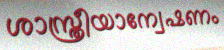
ശാസ്ത്രീയാന്വേഷണം